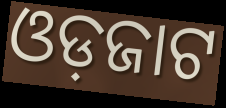
ଓଡ଼ଜାଟ